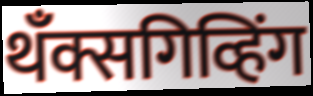
थॅँक्सगिव्हिंग